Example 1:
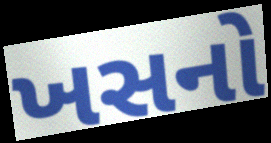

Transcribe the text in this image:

ખસનો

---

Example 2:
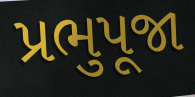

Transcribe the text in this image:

પ્રભુપૂજા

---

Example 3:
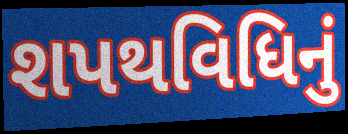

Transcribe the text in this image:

શપથવિધિનું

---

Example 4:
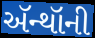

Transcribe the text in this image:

ઍન્થૉની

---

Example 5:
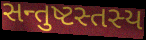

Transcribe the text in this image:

સન્તુષ્ટસ્તસ્ય